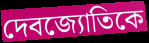
দেবজ্যোতিকে